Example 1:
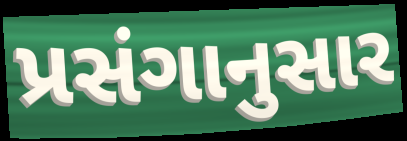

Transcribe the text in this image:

પ્રસંગાનુસાર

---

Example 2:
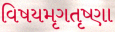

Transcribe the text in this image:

વિષયમૃગતૃષ્ણા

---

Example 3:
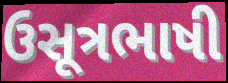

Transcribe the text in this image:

ઉસૂત્રભાષી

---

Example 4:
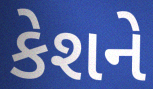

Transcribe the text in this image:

કેશને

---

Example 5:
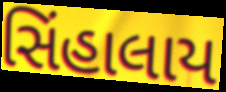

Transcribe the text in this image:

સિંહાલાય